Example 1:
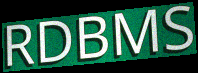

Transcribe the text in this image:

RDBMS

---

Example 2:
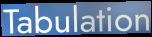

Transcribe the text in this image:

Tabulation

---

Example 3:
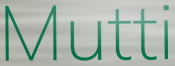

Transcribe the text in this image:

Mutti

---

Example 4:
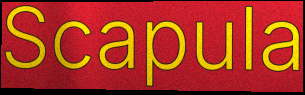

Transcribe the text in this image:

Scapula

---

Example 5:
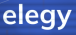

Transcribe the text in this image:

elegy